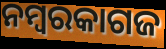
ନମ୍ବରକାଗଜ